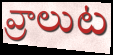
వ్రాలుట